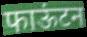
फाऊंटन